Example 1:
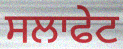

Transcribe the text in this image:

ਸਲਾਫੇਟ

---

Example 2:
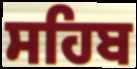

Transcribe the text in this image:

ਸਹਿਬ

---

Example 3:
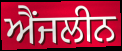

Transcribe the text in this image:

ਐਂਜਲੀਨ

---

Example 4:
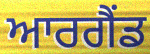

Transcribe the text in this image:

ਆਰਗੈਂਡ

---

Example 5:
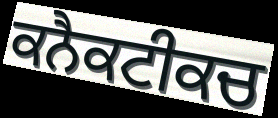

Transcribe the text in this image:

ਕਨੈਕਟੀਕਚ